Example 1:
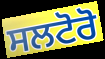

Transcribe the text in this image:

ਸਲਟੋਰੋ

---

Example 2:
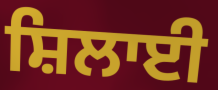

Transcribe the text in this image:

ਸ਼ਿਲਾਈ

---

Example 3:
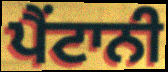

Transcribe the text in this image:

ਪੈਂਟਾਨੀ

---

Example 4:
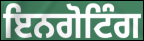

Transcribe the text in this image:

ਇਨਗੋਟਿੰਗ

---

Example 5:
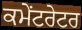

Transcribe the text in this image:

ਕਮੇਂਟਰੇਟਰ